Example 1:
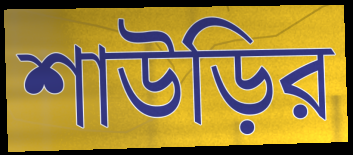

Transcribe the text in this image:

শাউড়ির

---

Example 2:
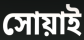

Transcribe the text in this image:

সোয়াই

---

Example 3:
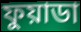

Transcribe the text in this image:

ফুয়াডা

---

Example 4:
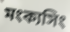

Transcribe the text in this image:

মংক্যসিং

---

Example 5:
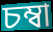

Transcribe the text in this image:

চম্বা